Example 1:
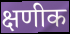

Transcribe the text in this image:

क्षणीक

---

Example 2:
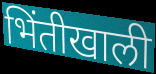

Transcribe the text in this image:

भिंतीखाली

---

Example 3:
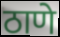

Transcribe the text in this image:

ठाणे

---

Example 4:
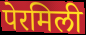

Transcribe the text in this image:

पेरमिली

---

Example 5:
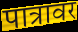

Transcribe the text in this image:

पात्रावर